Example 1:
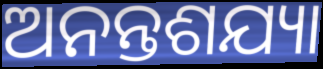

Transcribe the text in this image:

ଅନନ୍ତଶଯ୍ୟା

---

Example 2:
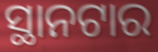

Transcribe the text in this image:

ସ୍ଥାନଟାର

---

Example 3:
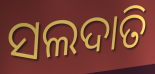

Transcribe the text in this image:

ସଲଦାତି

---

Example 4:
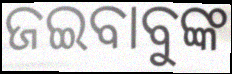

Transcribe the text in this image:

ଜଇବାବୁଙ୍କ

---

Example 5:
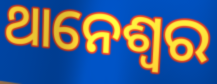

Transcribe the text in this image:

ଥାନେଶ୍ୱର